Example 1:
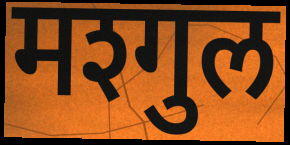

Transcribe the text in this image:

मश्गुल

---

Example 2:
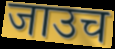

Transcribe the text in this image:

जाउच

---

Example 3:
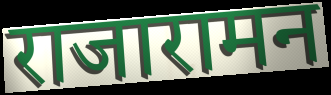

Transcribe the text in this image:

राजारामन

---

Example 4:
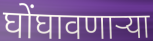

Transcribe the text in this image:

घोंघावणाऱ्या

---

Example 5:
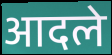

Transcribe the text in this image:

आदले